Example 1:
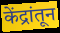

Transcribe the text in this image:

केंद्रांतून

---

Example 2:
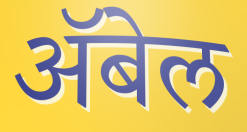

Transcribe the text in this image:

ॲबेल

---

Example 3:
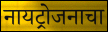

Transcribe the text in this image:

नायट्रोजनाचा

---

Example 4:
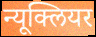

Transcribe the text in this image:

न्यूक्लियर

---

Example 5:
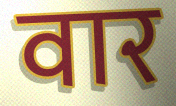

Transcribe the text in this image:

वार